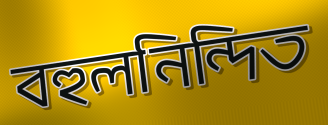
বহুলনিন্দিত